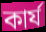
কার্য